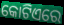
କୋଟିଏରେ